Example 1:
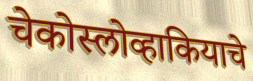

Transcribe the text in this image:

चेकोस्लोव्हाकियाचे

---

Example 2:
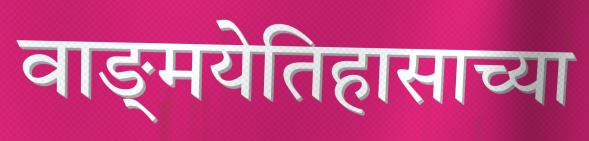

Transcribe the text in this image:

वाङ्‌मयेतिहासाच्या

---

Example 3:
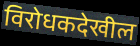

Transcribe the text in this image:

विरोधकदेखील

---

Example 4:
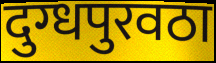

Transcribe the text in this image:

दुग्धपुरवठा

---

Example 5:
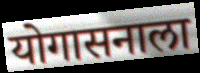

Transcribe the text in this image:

योगासनाला